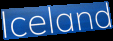
Iceland